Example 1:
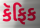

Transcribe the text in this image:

કૅફિક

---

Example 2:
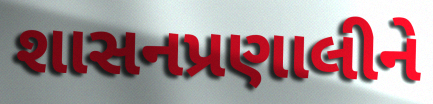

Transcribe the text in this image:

શાસનપ્રણાલીને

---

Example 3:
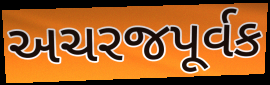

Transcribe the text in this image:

અચરજપૂર્વક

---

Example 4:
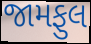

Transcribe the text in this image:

જામફુલ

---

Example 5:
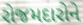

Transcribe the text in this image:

રોજમદારોને